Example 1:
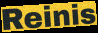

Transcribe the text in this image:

Reinis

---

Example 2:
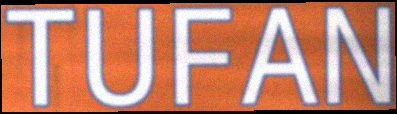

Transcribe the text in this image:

TUFAN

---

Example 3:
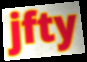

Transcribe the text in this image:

jfty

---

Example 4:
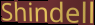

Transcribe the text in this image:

Shindell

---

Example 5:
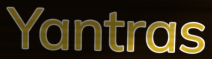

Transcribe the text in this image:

Yantras